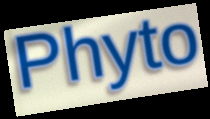
Phyto